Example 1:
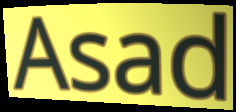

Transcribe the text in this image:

Asad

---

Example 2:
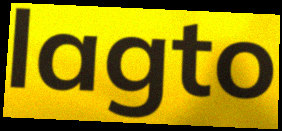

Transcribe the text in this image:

lagto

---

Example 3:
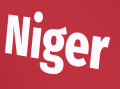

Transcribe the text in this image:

Niger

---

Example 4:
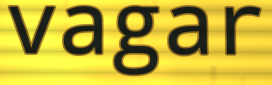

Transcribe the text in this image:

vagar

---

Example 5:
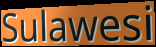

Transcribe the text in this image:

Sulawesi